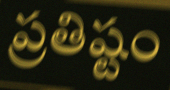
ప్రతిష్టం